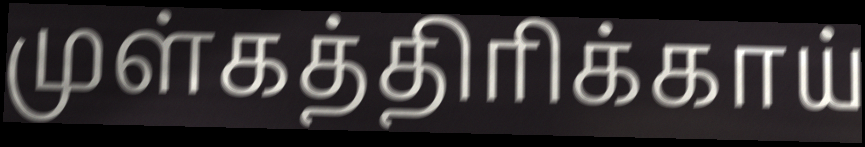
முள்கத்திரிக்காய்